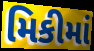
મિકીમાં